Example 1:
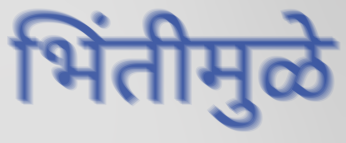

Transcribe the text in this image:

भिंतीमुळे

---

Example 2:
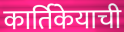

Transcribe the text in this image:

कार्तिकेयाची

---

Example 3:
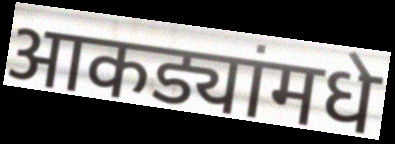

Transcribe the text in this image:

आकड्यांमधे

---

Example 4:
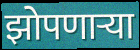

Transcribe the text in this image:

झोपणाऱ्या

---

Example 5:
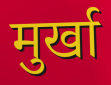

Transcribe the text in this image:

मुर्खा